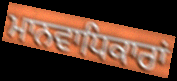
ਮਾਨਵਾਧਿਕਾਰਾਂ